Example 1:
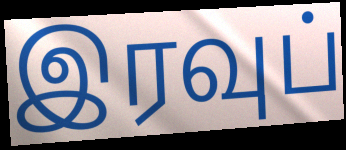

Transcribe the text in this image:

இரவுப்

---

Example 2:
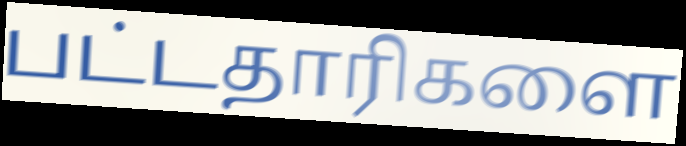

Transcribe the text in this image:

பட்டதாரிகளை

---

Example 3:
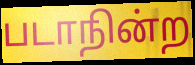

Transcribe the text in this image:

படாநின்ற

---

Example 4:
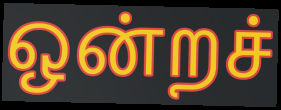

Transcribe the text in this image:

ஒன்றச்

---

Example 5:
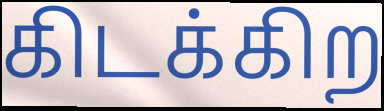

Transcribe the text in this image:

கிடக்கிற